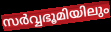
സർവ്വഭൂമിയിലും